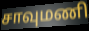
சாவுமணி